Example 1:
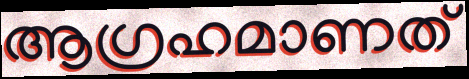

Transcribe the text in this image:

ആഗ്രഹമാണത്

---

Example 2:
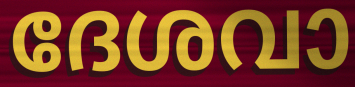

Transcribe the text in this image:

ദേശവാ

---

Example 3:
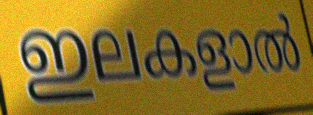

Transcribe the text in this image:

ഇലകളാൽ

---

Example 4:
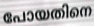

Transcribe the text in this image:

പോയതിനെ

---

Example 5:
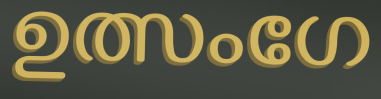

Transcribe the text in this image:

ഉത്സംഗേ